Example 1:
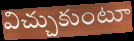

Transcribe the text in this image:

విచ్చుకుంటూ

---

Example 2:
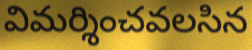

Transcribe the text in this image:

విమర్శించవలసిన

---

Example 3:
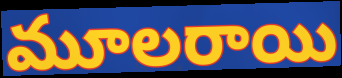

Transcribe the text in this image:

మూలరాయి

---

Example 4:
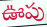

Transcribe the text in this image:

ఊపు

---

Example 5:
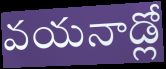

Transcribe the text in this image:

వయనాడ్లో